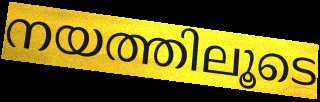
നയത്തിലൂടെ